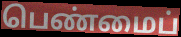
பெண்மைப்